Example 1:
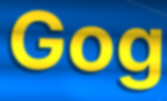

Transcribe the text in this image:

Gog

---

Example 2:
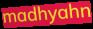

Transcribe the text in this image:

madhyahn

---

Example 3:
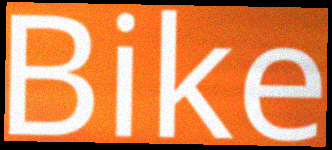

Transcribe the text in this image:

Bike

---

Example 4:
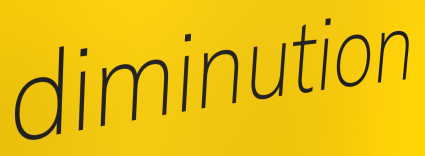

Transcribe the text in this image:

diminution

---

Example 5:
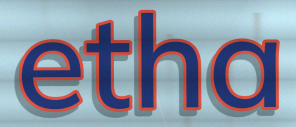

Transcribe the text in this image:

etha